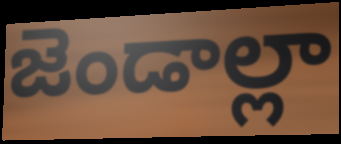
జెండాల్లా